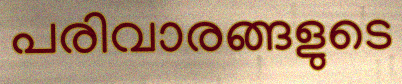
പരിവാരങ്ങളുടെ